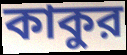
কাকুর